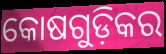
କୋଷଗୁଡ଼ିକର